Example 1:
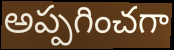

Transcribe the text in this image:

అప్పగించగా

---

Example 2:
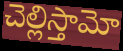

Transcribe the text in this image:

చెల్లిస్తామో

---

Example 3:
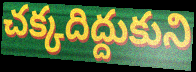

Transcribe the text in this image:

చక్కదిద్దుకుని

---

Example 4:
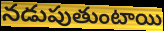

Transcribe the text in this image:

నడుపుతుంటాయి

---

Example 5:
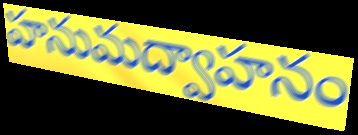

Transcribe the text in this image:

హనుమద్వాహనం